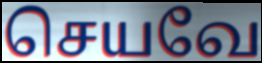
செயவே